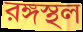
রঙ্গস্থল